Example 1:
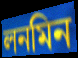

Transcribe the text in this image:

লনমিন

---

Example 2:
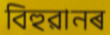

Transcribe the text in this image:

বিহুৱানৰ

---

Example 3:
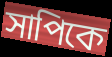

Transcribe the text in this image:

সাপিকে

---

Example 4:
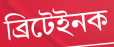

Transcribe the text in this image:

ব্ৰিটেইনক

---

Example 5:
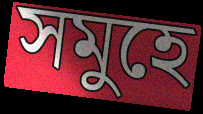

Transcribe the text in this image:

সমুহে